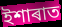
ইশাৰাত